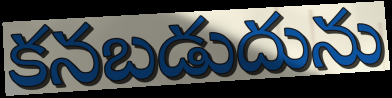
కనబడుదును